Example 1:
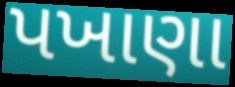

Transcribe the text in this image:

પખાણા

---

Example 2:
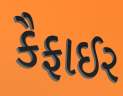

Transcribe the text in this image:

કૈફાઈર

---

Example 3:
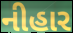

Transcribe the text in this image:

નીહાર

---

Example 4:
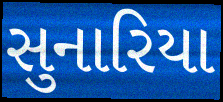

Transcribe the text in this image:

સુનારિયા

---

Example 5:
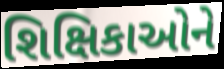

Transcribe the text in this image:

શિક્ષિકાઓને